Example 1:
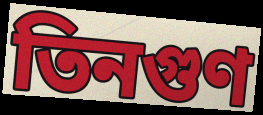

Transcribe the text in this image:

তিনগুণ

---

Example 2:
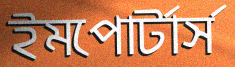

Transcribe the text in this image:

ইমপোর্টার্স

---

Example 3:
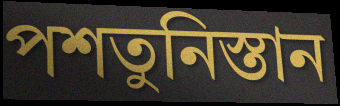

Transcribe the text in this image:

পশতুনিস্তান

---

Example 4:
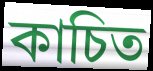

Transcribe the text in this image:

কাচিত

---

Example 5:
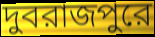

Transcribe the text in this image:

দুবরাজপুরে